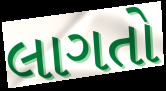
લાગતો